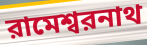
রামেশ্বরনাথ